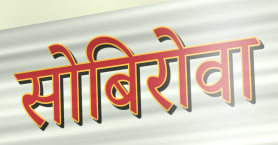
सोबिरोवा